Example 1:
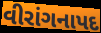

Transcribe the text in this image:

વીરાંગનાપદ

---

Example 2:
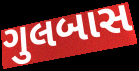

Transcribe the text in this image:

ગુલબાસ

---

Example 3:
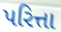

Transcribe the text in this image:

પરિત્તા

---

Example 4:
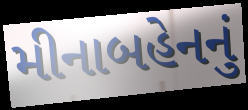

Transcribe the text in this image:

મીનાબહેનનું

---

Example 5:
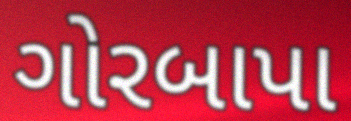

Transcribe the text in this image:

ગોરબાપા